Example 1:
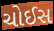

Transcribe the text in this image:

ચોઈસ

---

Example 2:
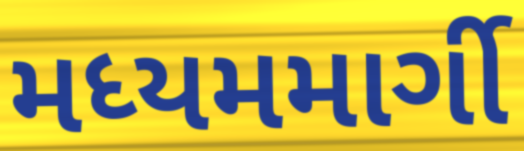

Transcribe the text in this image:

મધ્યમમાર્ગી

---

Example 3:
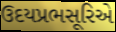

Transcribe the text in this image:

ઉદયપ્રભસૂરિએ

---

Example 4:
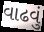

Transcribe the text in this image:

વાઢવું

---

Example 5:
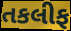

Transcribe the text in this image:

તકલીફ